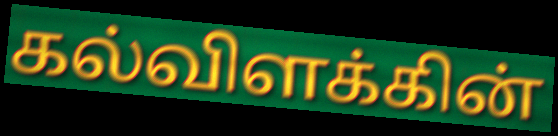
கல்விளக்கின்